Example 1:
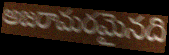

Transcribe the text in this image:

అజరామరమైనది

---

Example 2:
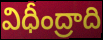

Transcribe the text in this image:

విధీంద్రాది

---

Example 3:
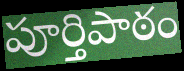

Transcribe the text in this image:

పూర్తిపాఠం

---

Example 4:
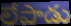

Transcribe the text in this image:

లేపాడు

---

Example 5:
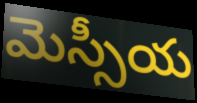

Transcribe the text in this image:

మెస్సీయ